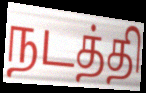
நடத்தி